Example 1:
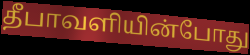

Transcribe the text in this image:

தீபாவளியின்போது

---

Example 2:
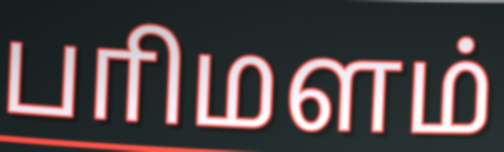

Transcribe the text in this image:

பரிமளம்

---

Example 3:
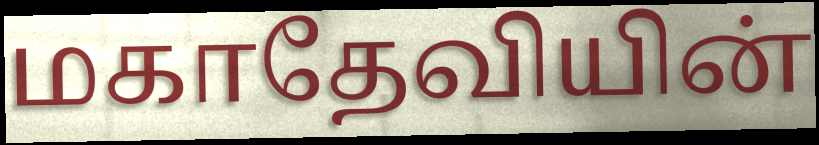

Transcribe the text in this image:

மகாதேவியின்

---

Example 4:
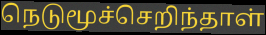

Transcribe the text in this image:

நெடுமூச்செறிந்தாள்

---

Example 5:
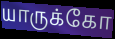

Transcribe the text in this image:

யாருக்கோ